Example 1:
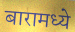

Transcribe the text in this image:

बारामध्ये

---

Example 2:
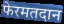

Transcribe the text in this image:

फेरमतदान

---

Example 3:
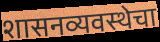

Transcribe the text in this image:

शासनव्यवस्थेचा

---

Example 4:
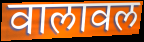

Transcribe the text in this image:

वालावल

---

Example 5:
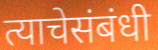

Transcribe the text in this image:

त्याचेसंबंधी